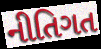
નીતિગત